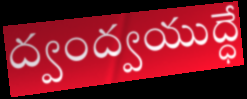
ద్వంద్వయుద్ధే